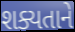
શક્યતાને